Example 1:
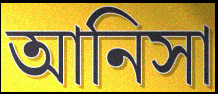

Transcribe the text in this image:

আনিসা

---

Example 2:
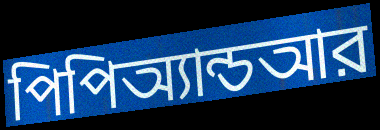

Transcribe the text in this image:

পিপিঅ্যান্ডআর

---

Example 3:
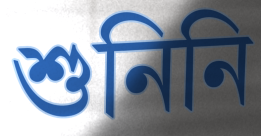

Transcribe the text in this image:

শুনিনি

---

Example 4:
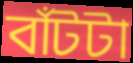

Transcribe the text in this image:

বাঁটটা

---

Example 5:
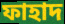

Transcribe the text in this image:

ফাহাদ